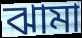
ঝামা